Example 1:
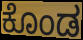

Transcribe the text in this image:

ಕೊಂಡ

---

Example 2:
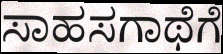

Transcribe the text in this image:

ಸಾಹಸಗಾಥೆಗೆ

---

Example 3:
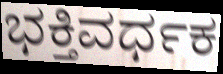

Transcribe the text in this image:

ಭಕ್ತಿವರ್ಧಕ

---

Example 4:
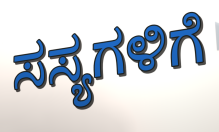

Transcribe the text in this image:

ಸಸ್ಯಗಳಿಗೆ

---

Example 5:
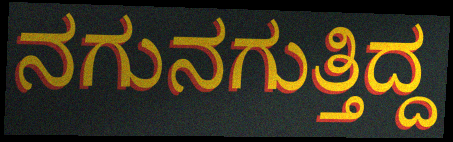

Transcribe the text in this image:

ನಗುನಗುತ್ತಿದ್ದ